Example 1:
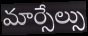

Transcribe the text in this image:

మార్సేల్సు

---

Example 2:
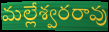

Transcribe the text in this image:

మల్లేశ్వరరావు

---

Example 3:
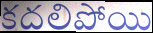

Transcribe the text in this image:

కదలిపోయి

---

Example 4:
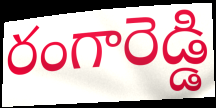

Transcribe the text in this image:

రంగారెడ్డి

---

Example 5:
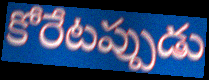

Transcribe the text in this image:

కోరేటప్పుడు